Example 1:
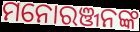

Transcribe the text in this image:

ମନୋରଞ୍ଜନଙ୍କ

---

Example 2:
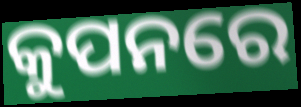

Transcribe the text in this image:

କୁପନରେ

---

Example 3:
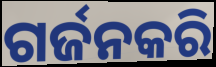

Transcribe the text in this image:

ଗର୍ଜନକରି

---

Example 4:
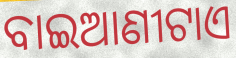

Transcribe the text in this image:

ବାଇଆଣୀଟାଏ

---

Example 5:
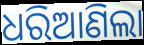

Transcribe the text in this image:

ଧରିଆଣିଲା